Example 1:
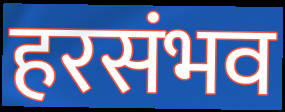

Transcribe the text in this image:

हरसंभव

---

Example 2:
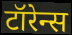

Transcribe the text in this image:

टॉरेन्स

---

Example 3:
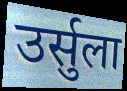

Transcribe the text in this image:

उर्सुला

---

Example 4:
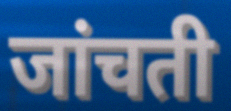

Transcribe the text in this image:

जांचती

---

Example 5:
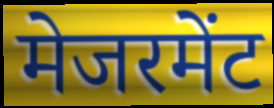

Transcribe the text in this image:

मेजरमेंट